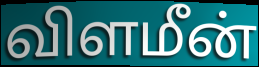
விளமீன்